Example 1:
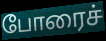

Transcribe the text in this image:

போரைச்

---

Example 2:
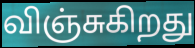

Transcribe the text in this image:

விஞ்சுகிறது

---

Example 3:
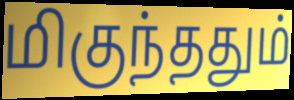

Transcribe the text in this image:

மிகுந்ததும்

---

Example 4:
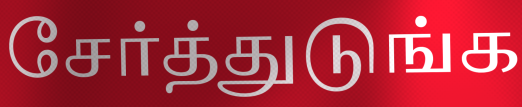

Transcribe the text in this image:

சேர்த்துடுங்க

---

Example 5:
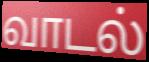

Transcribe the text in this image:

வாடல்